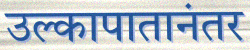
उल्कापातानंतर